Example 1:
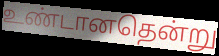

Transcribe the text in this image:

உண்டானதென்று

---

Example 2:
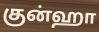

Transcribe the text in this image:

குன்ஹா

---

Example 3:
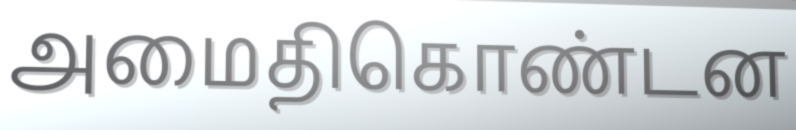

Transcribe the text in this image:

அமைதிகொண்டன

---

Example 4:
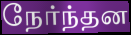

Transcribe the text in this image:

நேர்ந்தன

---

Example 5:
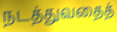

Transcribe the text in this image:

நடத்துவதைத்